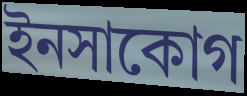
ইনসাকোগ